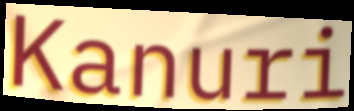
Kanuri